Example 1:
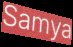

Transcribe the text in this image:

Samya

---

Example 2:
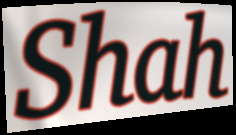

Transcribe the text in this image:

Shah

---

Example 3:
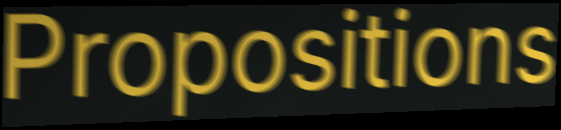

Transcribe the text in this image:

Propositions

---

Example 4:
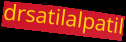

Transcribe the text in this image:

drsatilalpatil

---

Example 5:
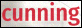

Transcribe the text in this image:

cunning